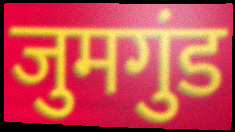
जुमगुंड